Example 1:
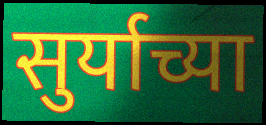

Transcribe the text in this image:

सुर्याच्या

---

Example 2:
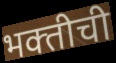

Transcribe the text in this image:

भक्‍तीची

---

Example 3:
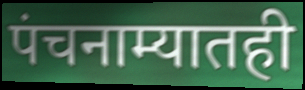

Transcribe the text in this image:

पंचनाम्यातही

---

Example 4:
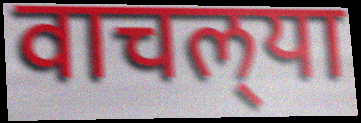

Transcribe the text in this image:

वाचल्या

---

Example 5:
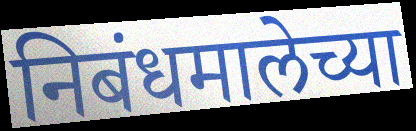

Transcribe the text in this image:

निबंधमालेच्या